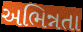
અભિન્નતા